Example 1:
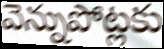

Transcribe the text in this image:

వెన్నుపోట్లకు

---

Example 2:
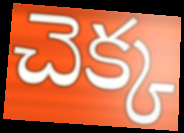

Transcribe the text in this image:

చెక్క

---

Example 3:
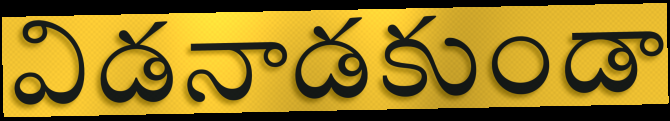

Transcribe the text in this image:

విడనాడకుండా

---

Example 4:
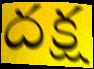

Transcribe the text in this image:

దక్ష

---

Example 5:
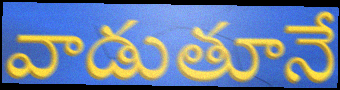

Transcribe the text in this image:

వాడుతూనే